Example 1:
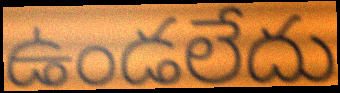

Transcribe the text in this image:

ఉండలేదు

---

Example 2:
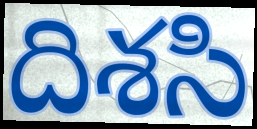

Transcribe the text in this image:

దిశసి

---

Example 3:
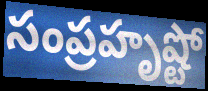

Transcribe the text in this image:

సంప్రహృష్టో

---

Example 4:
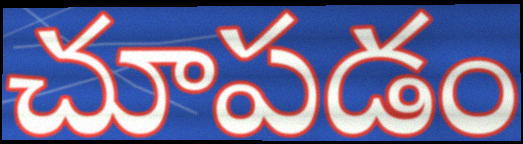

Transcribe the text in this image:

చూపడం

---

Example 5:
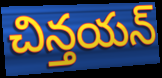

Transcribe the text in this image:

చిన్తయన్